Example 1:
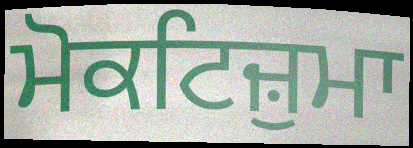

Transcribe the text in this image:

ਮੋਕਟਿਜ਼ੁਮਾ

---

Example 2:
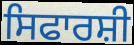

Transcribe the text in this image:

ਸਿਫਾਰਸ਼ੀ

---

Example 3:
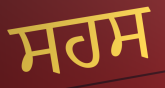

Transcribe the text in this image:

ਸਹਸ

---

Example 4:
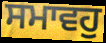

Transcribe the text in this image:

ਸਮਾਵਹੁ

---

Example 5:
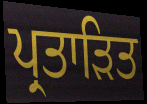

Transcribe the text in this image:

ਪ੍ਰਤਾੜਿਤ